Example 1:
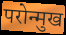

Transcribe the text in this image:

परोन्मुख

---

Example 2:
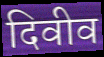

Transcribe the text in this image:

दिवीव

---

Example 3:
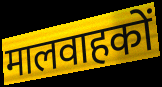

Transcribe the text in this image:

मालवाहकों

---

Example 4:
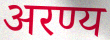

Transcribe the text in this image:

अरण्य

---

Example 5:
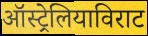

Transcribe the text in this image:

ऑस्ट्रेलियाविराट